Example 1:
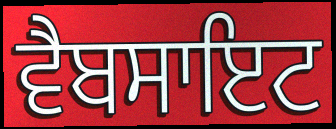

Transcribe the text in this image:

ਵੈਬਸਾਇਟ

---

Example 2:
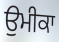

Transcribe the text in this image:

ਉਮੀਕਾ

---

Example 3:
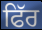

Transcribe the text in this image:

ਫਿੱਰ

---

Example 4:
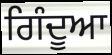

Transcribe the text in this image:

ਗਿੰਦੂਆ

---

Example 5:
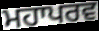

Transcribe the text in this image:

ਮਹਾਪਰਵ